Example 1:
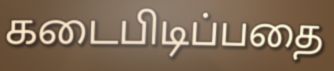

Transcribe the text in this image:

கடைபிடிப்பதை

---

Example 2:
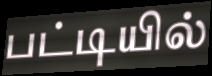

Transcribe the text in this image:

பட்டியில்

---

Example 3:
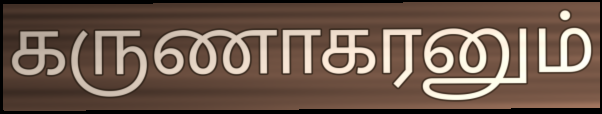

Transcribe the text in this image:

கருணாகரனும்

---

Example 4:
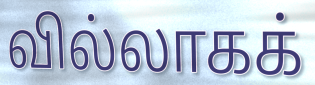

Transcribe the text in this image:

வில்லாகக்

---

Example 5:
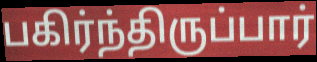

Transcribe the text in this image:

பகிர்ந்திருப்பார்